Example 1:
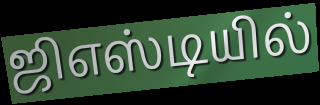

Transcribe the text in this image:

ஜிஎஸ்டியில்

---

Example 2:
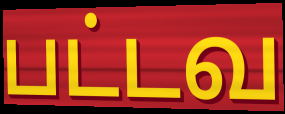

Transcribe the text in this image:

பட்டவ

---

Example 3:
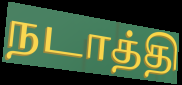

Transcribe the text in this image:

நடாத்தி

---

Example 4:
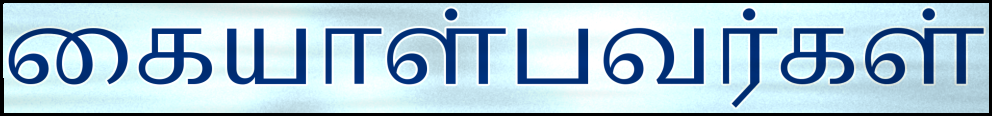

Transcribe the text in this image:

கையாள்பவர்கள்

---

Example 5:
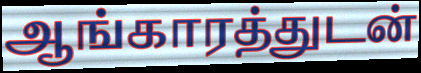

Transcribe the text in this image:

ஆங்காரத்துடன்